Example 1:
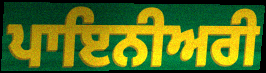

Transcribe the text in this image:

ਪਾਇਨੀਅਰੀ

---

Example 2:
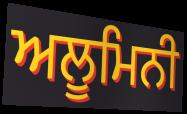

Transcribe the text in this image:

ਅਲੂਮਿਨੀ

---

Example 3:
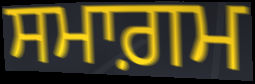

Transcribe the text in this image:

ਸਮਾਗ਼ਮ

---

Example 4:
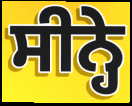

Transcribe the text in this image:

ਸੀਨ੍ਹੇ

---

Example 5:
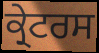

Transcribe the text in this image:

ਕ੍ਰੇਟਰਸ